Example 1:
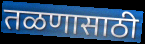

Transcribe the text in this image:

तळणासाठी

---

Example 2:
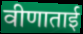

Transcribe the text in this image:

वीणाताई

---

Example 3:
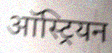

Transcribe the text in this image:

ऑस्ट्रियन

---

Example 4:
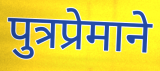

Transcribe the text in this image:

पुत्रप्रेमाने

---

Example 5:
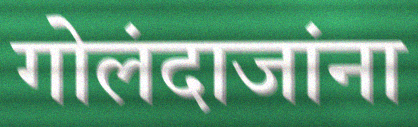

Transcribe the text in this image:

गोलंदाजांना